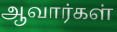
ஆவார்கள்